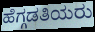
ಹೆಗ್ಗಡತಿಯರು